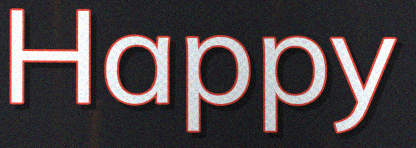
Happy